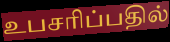
உபசரிப்பதில்